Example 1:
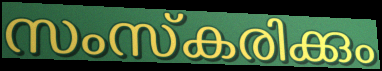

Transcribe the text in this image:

സംസ്‌കരിക്കും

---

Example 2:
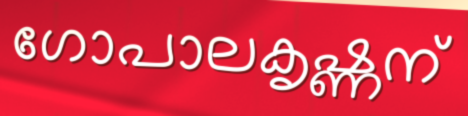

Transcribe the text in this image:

ഗോപാലകൃഷ്ണന്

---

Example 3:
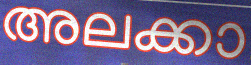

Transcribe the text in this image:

അലക്കാ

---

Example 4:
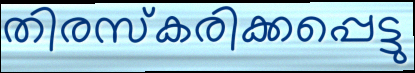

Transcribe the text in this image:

തിരസ്കരിക്കപ്പെട്ടു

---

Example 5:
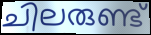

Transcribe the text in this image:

ചിലരുണ്ട്